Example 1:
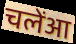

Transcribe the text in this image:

चलेंआ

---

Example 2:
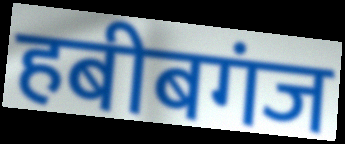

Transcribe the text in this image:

हबीबगंज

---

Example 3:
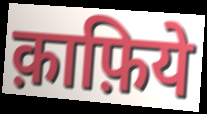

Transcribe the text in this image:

क़ाफ़िये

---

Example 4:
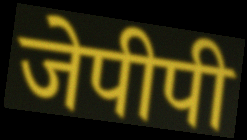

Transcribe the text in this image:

जेपीपी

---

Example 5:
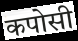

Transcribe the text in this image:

कपोसी